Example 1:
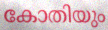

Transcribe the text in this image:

കോതിയും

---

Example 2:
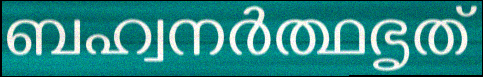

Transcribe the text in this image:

ബഹ്വനർത്ഥഭൃത്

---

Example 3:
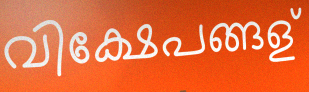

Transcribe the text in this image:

വിക്ഷേപങ്ങള്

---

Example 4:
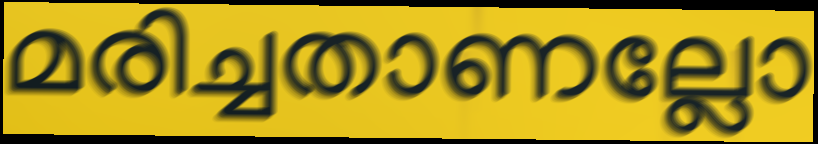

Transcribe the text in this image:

മരിച്ചതാണല്ലോ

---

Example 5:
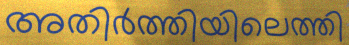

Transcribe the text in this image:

അതിർത്തിയിലെത്തി